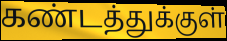
கண்டத்துக்குள்